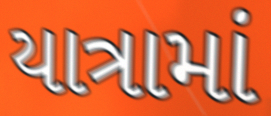
યાત્રામાં